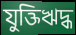
যুক্তিঋদ্ধ